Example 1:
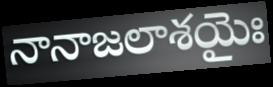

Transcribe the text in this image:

నానాజలాశయైః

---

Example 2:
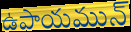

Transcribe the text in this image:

ఉపాయమున్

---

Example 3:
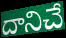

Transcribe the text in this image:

దానిచే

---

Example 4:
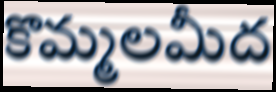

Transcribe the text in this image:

కొమ్మలమీద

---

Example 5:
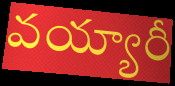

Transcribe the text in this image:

వయ్యారీ